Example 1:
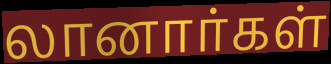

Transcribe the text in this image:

லானார்கள்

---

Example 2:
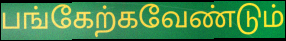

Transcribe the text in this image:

பங்கேற்கவேண்டும்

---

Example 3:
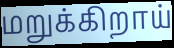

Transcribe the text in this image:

மறுக்கிறாய்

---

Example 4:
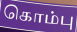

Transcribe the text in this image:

கொம்பு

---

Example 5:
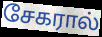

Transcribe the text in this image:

சேகரால்